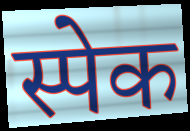
स्पेक